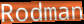
Rodman